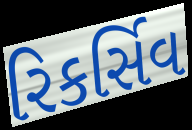
રિકર્સિવ